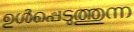
ഉൾപ്പെടുത്തുന്ന